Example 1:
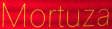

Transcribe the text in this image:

Mortuza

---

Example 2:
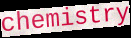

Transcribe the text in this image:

chemistry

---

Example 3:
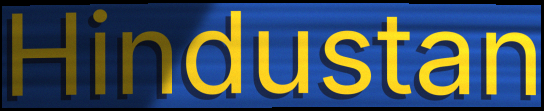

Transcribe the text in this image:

Hindustan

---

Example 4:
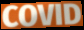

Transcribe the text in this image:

COVID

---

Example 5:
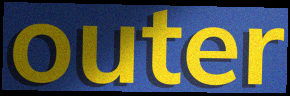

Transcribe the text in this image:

outer